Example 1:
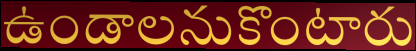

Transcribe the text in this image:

ఉండాలనుకొంటారు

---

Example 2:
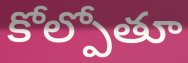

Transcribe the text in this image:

కోల్పోతూ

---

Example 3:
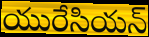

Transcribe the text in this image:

యురేసియన్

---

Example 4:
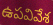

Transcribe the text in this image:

ఉపవివేశ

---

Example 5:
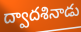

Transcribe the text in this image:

ద్వాదశినాడు